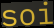
soi